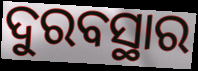
ଦୁରବସ୍ଥାର